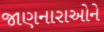
જાણનારાઓને